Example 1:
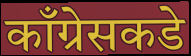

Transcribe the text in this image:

काँग्रेसकडे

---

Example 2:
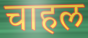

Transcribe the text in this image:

चाहल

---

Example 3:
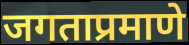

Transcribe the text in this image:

जगताप्रमाणे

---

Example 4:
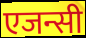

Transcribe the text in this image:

एजन्सी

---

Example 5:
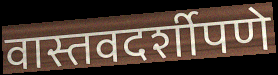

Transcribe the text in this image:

वास्तवदर्शीपणे